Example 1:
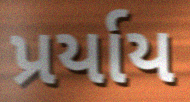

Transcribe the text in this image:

પ્રર્યાય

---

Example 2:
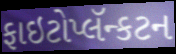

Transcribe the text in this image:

ફાઇટોપ્લૅન્કટન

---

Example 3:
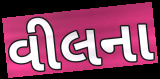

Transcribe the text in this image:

વીલના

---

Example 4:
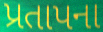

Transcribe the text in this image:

પ્રતાપના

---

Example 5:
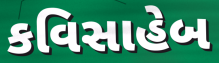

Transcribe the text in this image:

કવિસાહેબ